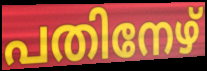
പതിനേഴ്